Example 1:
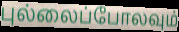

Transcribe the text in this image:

புல்லைப்போலவும்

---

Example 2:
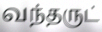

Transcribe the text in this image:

வந்தருட்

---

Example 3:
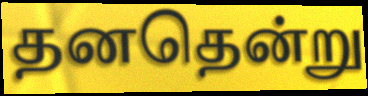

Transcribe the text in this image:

தனதென்று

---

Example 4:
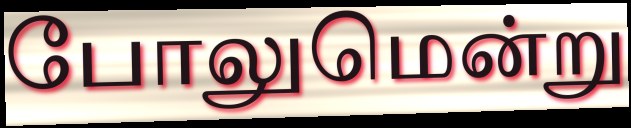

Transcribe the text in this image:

போலுமென்று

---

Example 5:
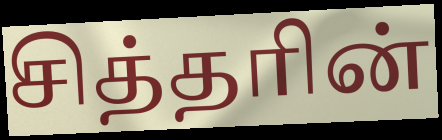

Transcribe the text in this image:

சித்தரின்